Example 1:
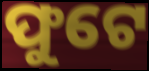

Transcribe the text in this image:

ଫୁଟେ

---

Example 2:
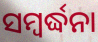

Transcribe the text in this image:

ସମ୍ୱର୍ଦ୍ଧନା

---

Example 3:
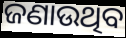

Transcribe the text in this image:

ଜଣାଉଥିବ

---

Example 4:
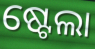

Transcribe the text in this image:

ଷ୍ଟେଲା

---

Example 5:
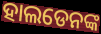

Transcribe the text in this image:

ହାଲଡେନଙ୍କ